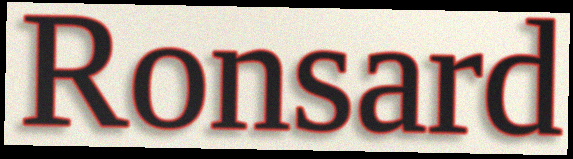
Ronsard